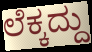
ಲೆಕ್ಕದ್ದು